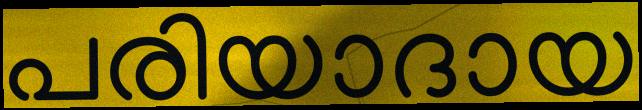
പരിയാദായ